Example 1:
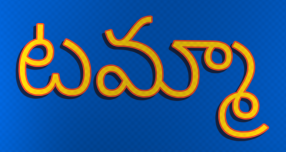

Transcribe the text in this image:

టమ్మా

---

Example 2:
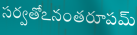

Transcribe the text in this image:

సర్వతోఽనంతరూపమ్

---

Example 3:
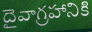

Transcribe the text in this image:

దైవాగ్రహానికి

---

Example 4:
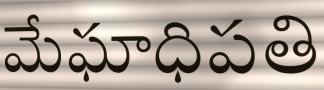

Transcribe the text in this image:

మేఘాధిపతి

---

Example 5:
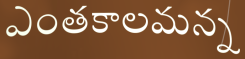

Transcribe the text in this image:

ఎంతకాలమన్న